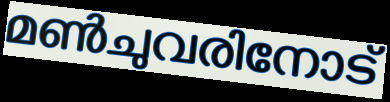
മൺചുവരിനോട്